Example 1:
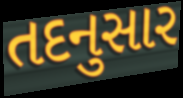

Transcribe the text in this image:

તદનુસાર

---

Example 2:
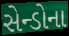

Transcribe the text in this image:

સેન્ડોના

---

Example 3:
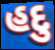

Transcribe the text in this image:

હદુ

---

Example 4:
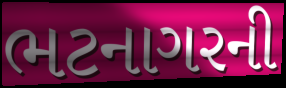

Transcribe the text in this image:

ભટનાગરની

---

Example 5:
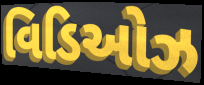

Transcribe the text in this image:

વિડિઓઝ